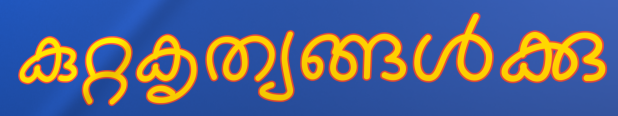
കുറ്റകൃത്യങ്ങൾക്കു